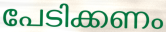
പേടിക്കണം